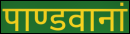
पाण्डवानां